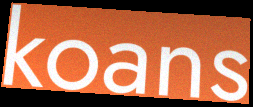
koans